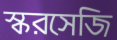
স্করসেজি